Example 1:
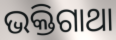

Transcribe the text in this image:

ଭକ୍ତିଗାଥା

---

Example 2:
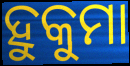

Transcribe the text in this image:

ହୁକୁମା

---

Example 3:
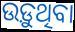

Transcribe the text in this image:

ଉଡ଼ୁଥିବା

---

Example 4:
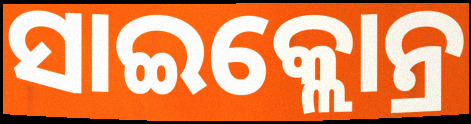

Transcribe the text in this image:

ସାଇକ୍ଲୋନ୍ର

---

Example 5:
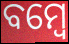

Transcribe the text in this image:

ବମ୍ୱେ